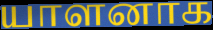
யாளனாக